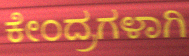
ಕೇಂದ್ರಗಳಾಗಿ